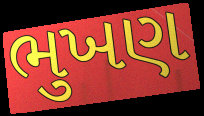
ભુખણ